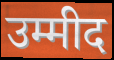
उम्मीद